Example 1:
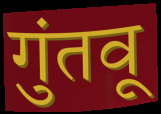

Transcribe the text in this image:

गुंतवू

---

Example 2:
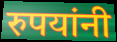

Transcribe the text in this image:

रुपयांनी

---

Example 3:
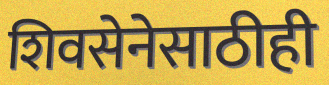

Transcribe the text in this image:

शिवसेनेसाठीही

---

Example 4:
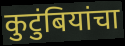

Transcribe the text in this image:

कुटुंबियांचा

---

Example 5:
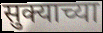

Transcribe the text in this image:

सुक्‍याच्या